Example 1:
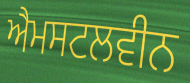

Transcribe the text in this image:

ਐਮਸਟਲਵੀਨ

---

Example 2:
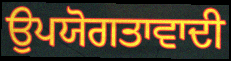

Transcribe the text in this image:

ਉਪਯੋਗਤਾਵਾਦੀ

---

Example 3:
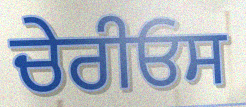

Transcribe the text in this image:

ਚੇਰੀਓਸ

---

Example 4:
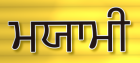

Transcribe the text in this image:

ਮਯਾਮੀ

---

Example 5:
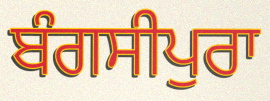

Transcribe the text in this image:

ਬੰਗਸੀਪੁਰਾ